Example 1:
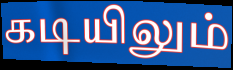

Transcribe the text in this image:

கடியிலும்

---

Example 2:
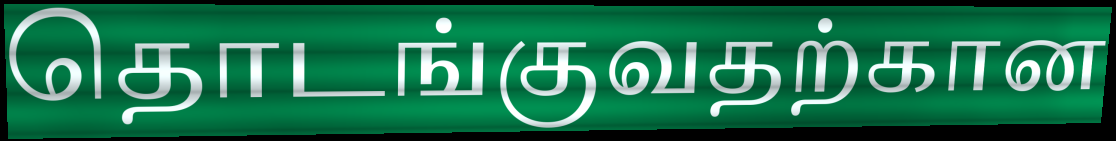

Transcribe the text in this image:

தொடங்குவதற்கான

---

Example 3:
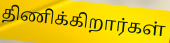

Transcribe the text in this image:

திணிக்கிறார்கள்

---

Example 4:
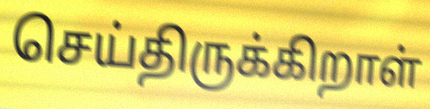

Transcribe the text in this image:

செய்திருக்கிறாள்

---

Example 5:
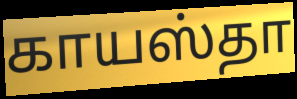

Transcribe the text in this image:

காயஸ்தா